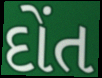
દોંત